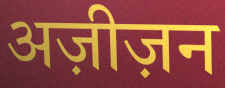
अज़ीज़न